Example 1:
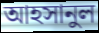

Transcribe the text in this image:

আহসানুল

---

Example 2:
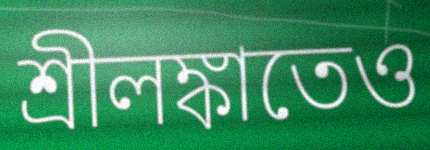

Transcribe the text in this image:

শ্রীলঙ্কাতেও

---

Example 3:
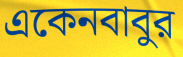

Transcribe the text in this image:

একেনবাবুর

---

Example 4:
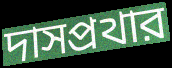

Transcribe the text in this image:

দাসপ্রথার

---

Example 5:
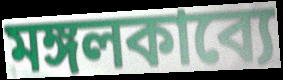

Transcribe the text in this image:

মঙ্গলকাব্যে